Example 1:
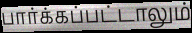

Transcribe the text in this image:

பார்க்கப்பட்டாலும்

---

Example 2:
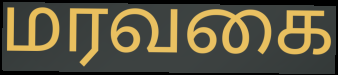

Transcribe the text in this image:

மரவகை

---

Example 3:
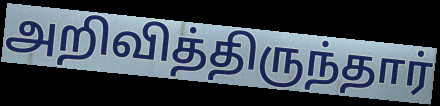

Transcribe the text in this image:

அறிவித்திருந்தார்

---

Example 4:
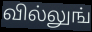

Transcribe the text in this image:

வில்லுங்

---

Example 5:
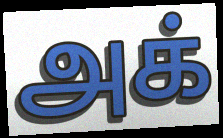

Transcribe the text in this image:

அக்